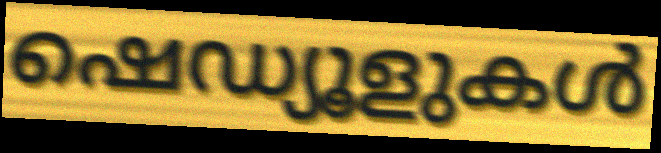
ഷെഡ്യൂളുകൾ